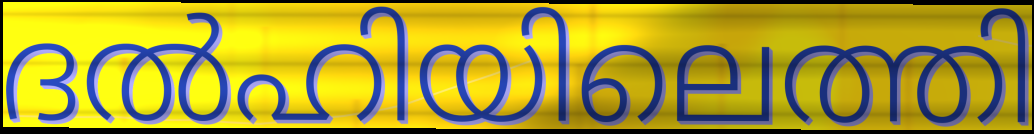
ദൽഹിയിലെത്തി